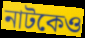
নাটকেও